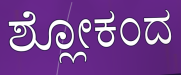
ಶ್ಲೋಕಂದ